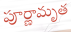
పూర్ణామృత